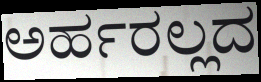
ಅರ್ಹರಲ್ಲದ